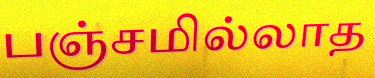
பஞ்சமில்லாத